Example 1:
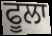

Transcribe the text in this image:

ਫੂਲਾ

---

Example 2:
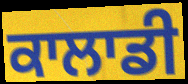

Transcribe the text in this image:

ਕਾਲਾਡੀ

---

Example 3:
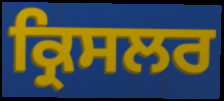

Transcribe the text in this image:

ਕ੍ਰਿਸਲਰ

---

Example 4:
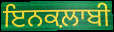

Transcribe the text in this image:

ਇਨਕ਼ਲਾਬੀ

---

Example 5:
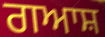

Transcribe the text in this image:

ਗਆਸ਼